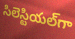
సిలెస్టియల్‌గా